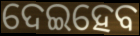
ଦେଇହେବ